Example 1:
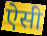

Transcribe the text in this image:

ऐसी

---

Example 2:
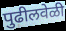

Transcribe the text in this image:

पुढीलवेळी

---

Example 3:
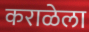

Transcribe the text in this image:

कराळेला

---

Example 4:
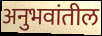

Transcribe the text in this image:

अनुभवांतील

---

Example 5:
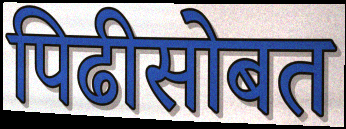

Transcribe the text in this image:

पिढीसोबत